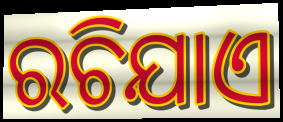
ରଚିଯାଏ